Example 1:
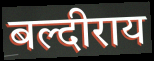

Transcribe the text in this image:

बल्दीराय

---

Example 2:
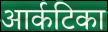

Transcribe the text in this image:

आर्कटिका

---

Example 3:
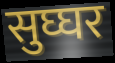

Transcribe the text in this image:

सुघ्घर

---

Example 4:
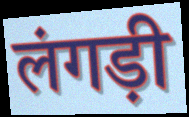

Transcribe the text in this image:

लंगड़ी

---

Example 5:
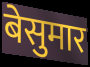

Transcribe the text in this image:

बेसुमार